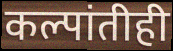
कल्पांतीही